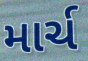
માર્ચ